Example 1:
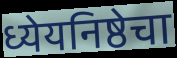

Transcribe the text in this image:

ध्येयनिष्ठेचा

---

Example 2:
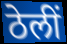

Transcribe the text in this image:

ठेलीं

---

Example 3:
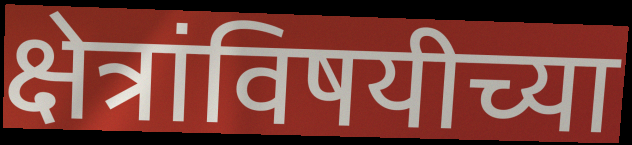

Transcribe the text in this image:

क्षेत्रांविषयीच्या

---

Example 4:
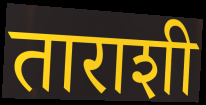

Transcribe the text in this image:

ताराशी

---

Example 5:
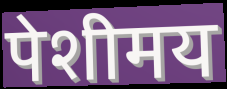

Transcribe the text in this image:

पेशीमय